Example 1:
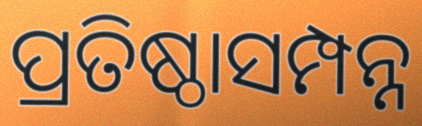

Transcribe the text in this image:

ପ୍ରତିଷ୍ଠାସମ୍ପନ୍ନ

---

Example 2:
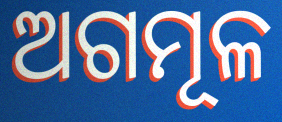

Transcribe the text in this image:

ଅଗମୂଳ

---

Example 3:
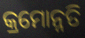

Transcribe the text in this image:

କ୍ରମୋନ୍ନତି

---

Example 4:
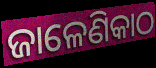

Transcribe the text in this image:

ଜାଳେଣିକାଠ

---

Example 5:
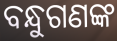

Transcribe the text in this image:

ବନ୍ଧୁଗଣଙ୍କ